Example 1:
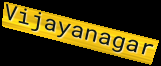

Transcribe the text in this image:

Vijayanagar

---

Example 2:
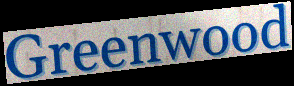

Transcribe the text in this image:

Greenwood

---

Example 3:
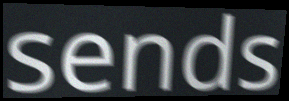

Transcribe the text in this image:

sends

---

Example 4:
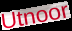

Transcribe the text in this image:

Utnoor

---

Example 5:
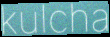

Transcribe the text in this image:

kulcha